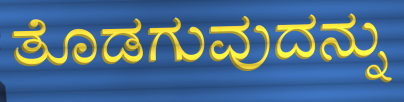
ತೊಡಗುವುದನ್ನು